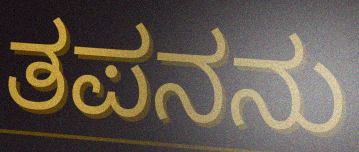
ತಪನನು